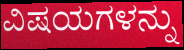
ವಿಷಯಗಳನ್ನು